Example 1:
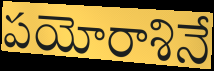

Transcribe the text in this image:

పయోరాశినే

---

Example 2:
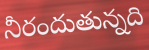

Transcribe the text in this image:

నీరందుతున్నది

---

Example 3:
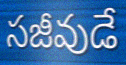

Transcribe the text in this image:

సజీవుడే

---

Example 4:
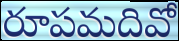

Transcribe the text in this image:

రూపమదివో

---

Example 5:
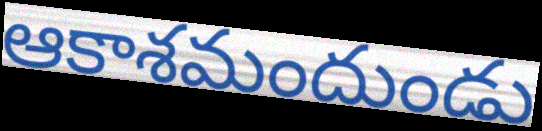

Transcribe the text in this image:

ఆకాశమందుండు